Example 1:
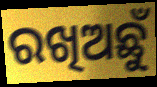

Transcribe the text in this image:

ରଖିଅଛୁଁ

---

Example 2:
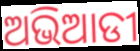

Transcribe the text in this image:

ଅଭିଆଡୀ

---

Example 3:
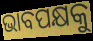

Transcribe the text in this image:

ଭାବପକ୍ଷକୁ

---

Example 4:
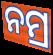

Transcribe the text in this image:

ନମ୍ର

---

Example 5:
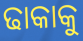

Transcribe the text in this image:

ଢାକାକୁ